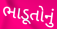
ભાડૂતોનું